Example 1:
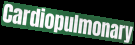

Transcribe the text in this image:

Cardiopulmonary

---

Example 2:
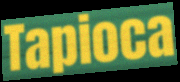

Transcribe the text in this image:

Tapioca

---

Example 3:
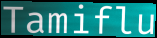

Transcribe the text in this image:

Tamiflu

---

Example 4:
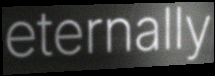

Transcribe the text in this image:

eternally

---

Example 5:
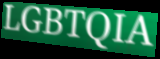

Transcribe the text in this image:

LGBTQIA